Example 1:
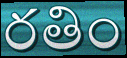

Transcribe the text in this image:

రతిం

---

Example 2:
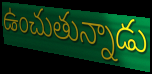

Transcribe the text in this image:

ఉంచుతున్నాడు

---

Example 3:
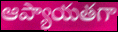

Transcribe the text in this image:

ఆప్యాయతగా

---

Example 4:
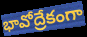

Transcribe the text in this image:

భావోద్రేకంగా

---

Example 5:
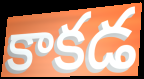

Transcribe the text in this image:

కాకడ